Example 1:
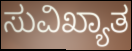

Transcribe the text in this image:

ಸುವಿಖ್ಯಾತ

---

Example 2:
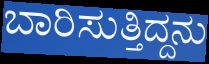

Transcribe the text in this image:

ಬಾರಿಸುತ್ತಿದ್ದನು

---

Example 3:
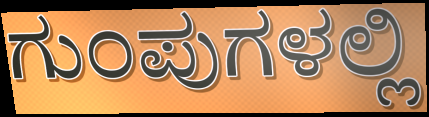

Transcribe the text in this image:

ಗುಂಪುಗಳಲ್ಲಿ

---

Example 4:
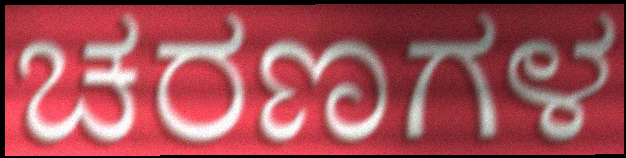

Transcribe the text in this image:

ಚರಣಗಳ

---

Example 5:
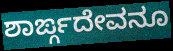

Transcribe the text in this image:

ಶಾರ್ಙ್ಗದೇವನೂ